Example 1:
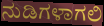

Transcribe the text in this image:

ನುಡಿಗಳಾಗಲಿ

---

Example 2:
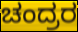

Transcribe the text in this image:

ಚಂದ್ರರ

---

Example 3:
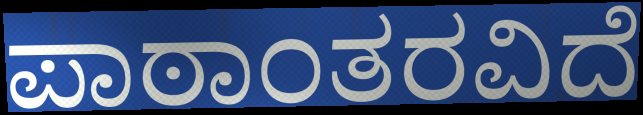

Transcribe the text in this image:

ಪಾಠಾಂತರವಿದೆ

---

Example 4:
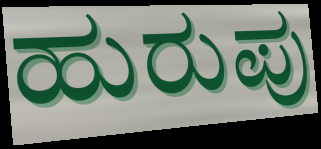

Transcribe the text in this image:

ಹುರುಪು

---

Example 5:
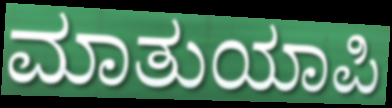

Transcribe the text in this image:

ಮಾತುಯಾಪಿ